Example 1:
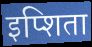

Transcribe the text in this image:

इप्शिता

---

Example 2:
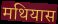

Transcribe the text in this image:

मथियास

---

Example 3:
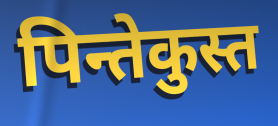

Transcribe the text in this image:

पिन्तेकुस्त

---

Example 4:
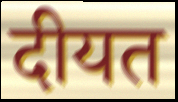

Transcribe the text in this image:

दीयत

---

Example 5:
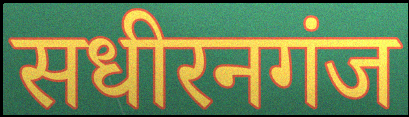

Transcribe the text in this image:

सधीरनगंज